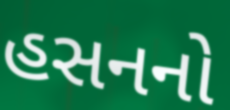
હસનનો